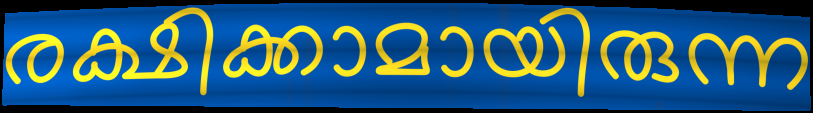
രക്ഷിക്കാമായിരുന്ന